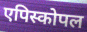
एपिस्कोपल